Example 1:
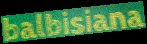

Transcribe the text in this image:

balbisiana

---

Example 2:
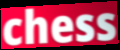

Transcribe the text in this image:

chess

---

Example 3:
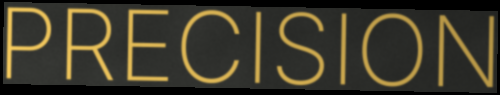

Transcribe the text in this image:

PRECISION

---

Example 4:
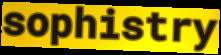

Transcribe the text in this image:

sophistry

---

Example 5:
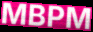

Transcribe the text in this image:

MBPM